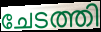
ചേടത്തി